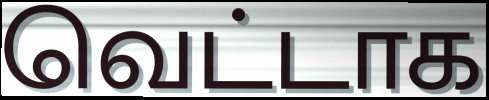
வெட்டாக